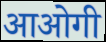
आओगी